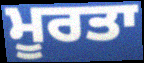
ਮੂਰਤਾ